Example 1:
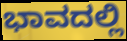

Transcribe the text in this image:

ಭಾವದಲ್ಲಿ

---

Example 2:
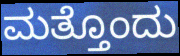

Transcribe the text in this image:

ಮತ್ತೊಂದು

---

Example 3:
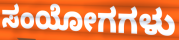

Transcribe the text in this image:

ಸಂಯೋಗಗಳು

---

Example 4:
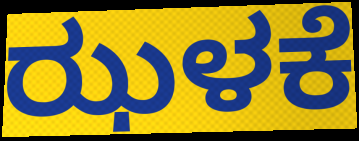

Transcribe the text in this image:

ಝಳಕೆ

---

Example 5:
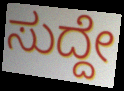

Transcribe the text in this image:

ಸುದ್ದೇ